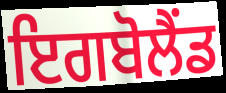
ਇਗਬੋਲੈਂਡ